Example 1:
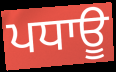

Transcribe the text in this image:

ਪਧਾਊ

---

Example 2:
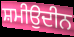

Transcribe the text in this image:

ਸ਼ਮੀਉਦੀਨ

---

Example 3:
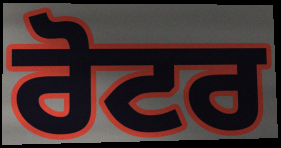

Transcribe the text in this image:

ਰੋਟਰ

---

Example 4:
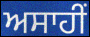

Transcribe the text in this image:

ਅਸਾਹੀਂ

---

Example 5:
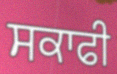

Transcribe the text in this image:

ਸਕਾਫੀ